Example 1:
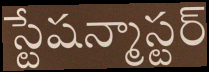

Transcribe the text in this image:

స్టేషన్మాస్టర్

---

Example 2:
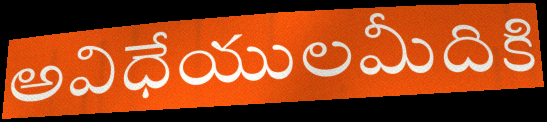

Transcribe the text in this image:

అవిధేయులమీదికి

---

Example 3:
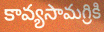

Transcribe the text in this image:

కావ్యసామగ్రికి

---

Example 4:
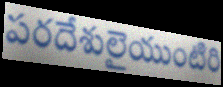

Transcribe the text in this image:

పరదేశులైయుంటిరి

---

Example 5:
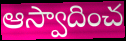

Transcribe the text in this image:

ఆస్వాదించ